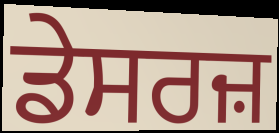
ਡੇਸਰਜ਼